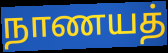
நாணயத்